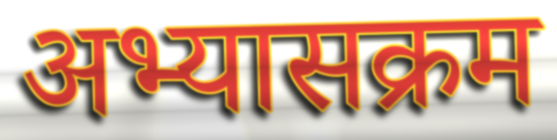
अभ्यासक्रम